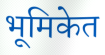
भूमिकेत